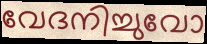
വേദനിച്ചുവോ